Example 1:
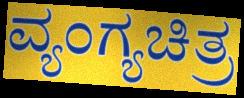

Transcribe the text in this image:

ವ್ಯಂಗ್ಯಚಿತ್ರ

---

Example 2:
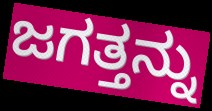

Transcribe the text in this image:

ಜಗತ್ತನ್ನು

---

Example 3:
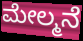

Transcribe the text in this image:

ಮೇಲ್ಮನೆ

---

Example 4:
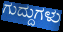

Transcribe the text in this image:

ಗುದ್ದುಗಳು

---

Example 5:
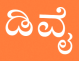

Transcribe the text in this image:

ಡಿವೈ